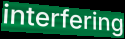
interfering